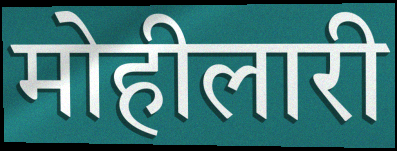
मोहीलारी